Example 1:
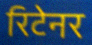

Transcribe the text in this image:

रिटेनर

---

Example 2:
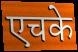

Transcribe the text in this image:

एचके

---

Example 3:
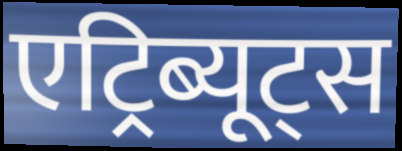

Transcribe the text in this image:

एट्रिब्यूट्स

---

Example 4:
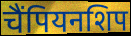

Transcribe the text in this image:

चैंपियनशिप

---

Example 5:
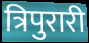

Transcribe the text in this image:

त्रिपुरारी